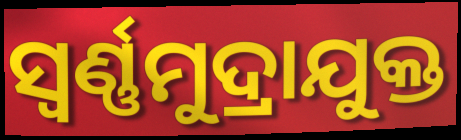
ସ୍ବର୍ଣ୍ଣମୁଦ୍ରାଯୁକ୍ତ